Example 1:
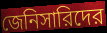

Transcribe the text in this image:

জেনিসারিদের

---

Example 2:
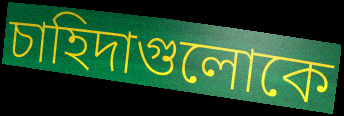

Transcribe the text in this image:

চাহিদাগুলোকে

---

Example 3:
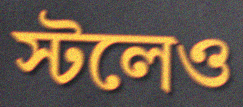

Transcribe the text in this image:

স্টলেও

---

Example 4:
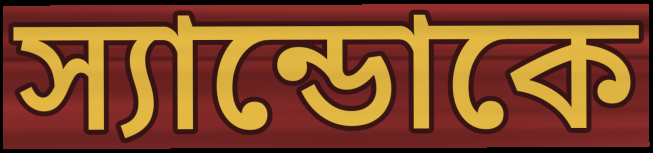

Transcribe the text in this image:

স্যান্ডোকে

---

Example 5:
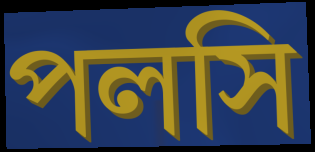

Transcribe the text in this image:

পলসি